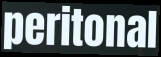
peritonal